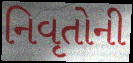
નિવૃતોની